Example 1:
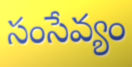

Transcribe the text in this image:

సంసేవ్యం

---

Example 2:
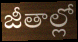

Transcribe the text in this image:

జీతాల్లో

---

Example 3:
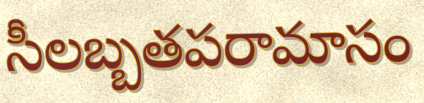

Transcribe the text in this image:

సీలబ్బతపరామాసం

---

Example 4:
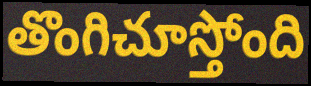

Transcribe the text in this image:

తొంగిచూస్తోంది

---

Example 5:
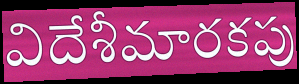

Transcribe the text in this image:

విదేశీమారకపు